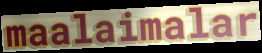
maalaimalar